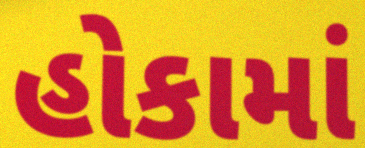
હોકામાં